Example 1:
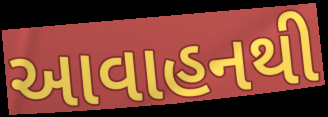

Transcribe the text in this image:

આવાહનથી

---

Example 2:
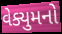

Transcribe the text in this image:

વેક્યુમનો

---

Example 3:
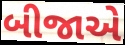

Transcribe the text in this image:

બીજાએ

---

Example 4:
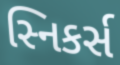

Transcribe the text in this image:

સ્નિકર્સ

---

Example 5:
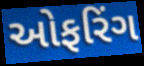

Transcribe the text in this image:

ઓફરિંગ